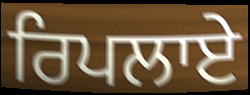
ਰਿਪਲਾਏ